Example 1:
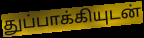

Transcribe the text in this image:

துப்பாக்கியுடன்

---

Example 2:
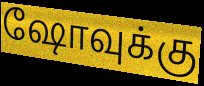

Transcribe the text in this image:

ஷோவுக்கு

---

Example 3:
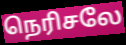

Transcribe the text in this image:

நெரிசலே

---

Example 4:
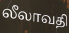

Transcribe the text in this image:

லீலாவதி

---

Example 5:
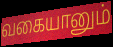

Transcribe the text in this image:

வகையானும்